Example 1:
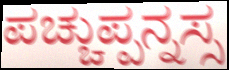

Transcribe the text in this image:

ಪಚ್ಚುಪ್ಪನ್ನಸ್ಸ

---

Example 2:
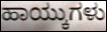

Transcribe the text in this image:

ಹಾಯ್ಕುಗಳು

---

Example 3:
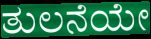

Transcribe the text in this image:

ತುಲನೆಯೇ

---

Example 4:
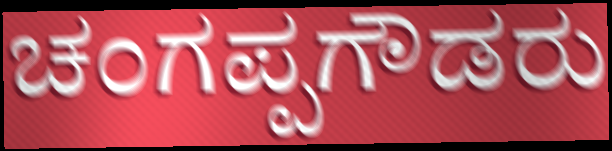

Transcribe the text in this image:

ಚಂಗಪ್ಪಗೌಡರು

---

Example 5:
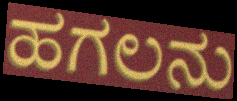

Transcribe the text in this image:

ಹಗಲನು